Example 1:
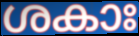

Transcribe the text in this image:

ശകാഃ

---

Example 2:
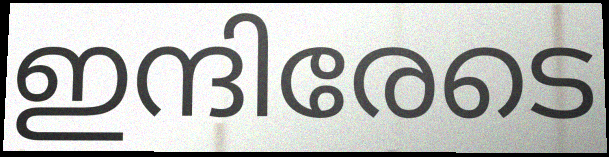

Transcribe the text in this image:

ഇന്ദിരേടെ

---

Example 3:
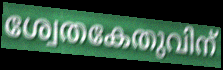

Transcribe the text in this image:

ശ്വേതകേതുവിന്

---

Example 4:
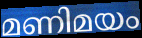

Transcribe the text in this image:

മണിമയം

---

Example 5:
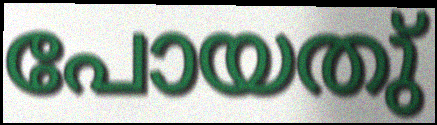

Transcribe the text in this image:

പോയതു്